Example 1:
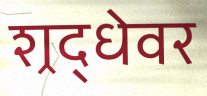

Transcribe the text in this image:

श्रद्धेवर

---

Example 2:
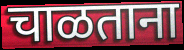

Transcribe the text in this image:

चाळताना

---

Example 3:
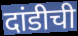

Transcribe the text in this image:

दांडीची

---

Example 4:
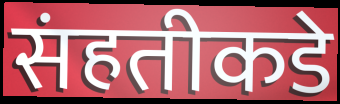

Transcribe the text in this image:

संहतीकडे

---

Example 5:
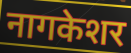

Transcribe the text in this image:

नागकेशर